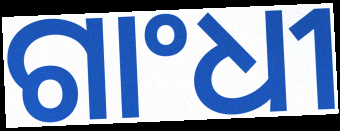
ଗାଂଧୀ